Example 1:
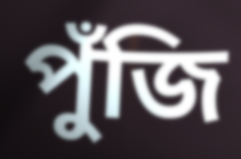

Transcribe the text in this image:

পুঁজি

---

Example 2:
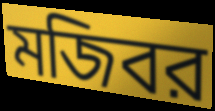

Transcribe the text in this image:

মজিবর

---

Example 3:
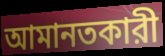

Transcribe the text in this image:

আমানতকারী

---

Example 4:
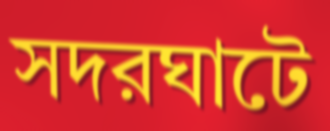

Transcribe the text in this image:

সদরঘাটে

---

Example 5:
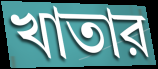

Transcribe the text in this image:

খাতার